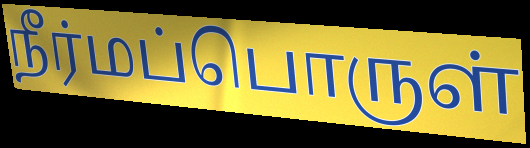
நீர்மப்பொருள்